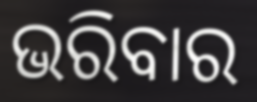
ଭରିବାର